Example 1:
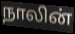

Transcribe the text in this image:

நாலின்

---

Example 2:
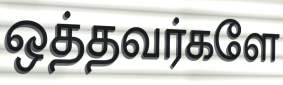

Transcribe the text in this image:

ஒத்தவர்களே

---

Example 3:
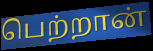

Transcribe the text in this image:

பெற்றான்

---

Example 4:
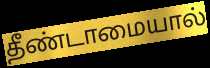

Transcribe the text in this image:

தீண்டாமையால்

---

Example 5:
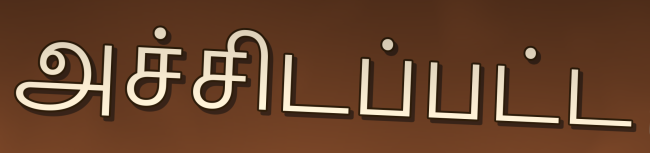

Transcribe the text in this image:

அச்சிடப்பட்ட